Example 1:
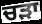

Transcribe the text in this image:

ਚੜਾ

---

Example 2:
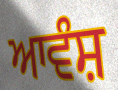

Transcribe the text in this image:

ਆਵੰਸ਼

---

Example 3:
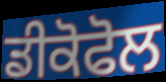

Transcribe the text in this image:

ਡੀਕੋਫੋਲ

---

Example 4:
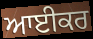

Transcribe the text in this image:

ਆਈਕਰ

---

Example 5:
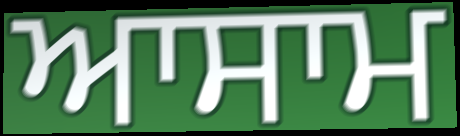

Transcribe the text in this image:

ਆਸਾਮ